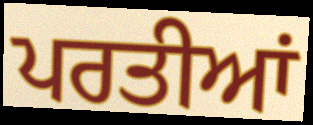
ਪਰਤੀਆਂ